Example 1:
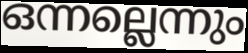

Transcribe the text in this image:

ഒന്നല്ലെന്നും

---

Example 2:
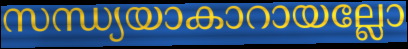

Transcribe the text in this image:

സന്ധ്യയാകാറായല്ലോ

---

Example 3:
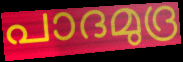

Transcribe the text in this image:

പാദമുദ്ര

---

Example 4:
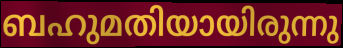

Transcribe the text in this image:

ബഹുമതിയായിരുന്നു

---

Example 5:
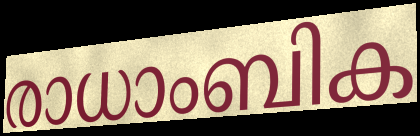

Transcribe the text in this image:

രാധാംബിക